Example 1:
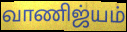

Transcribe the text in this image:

வாணிஜ்யம்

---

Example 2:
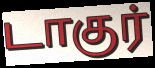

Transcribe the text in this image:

டாகுர்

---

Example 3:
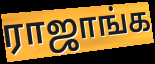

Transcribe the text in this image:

ராஜாங்க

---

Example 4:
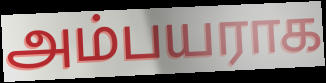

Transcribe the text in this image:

அம்பயராக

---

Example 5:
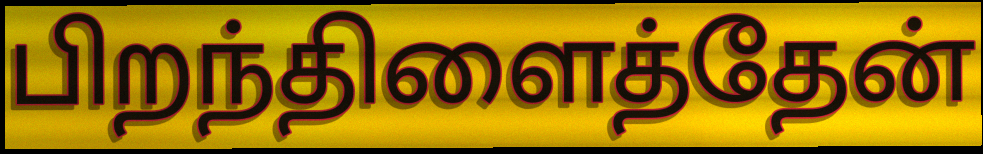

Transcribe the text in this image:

பிறந்திளைத்தேன்